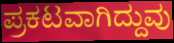
ಪ್ರಕಟವಾಗಿದ್ದುವು